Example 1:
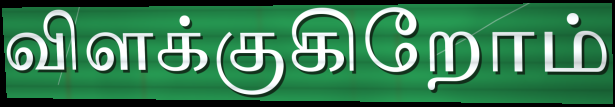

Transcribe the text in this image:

விளக்குகிறோம்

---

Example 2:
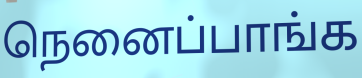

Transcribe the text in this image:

நெனைப்பாங்க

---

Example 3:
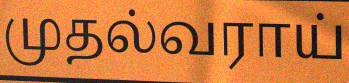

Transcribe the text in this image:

முதல்வராய்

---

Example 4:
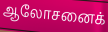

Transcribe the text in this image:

ஆலோசனைக்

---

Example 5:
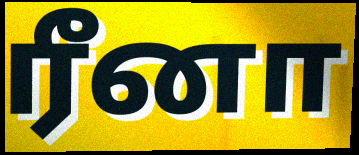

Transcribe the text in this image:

ரீனா